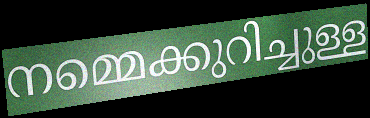
നമ്മെക്കുറിച്ചുള്ള